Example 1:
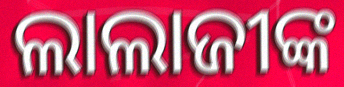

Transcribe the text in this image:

ଲାଲାଜୀଙ୍କ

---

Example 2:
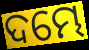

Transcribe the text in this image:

ଦମ୍ଭେ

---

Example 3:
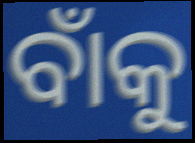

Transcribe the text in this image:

ବାଁକୁ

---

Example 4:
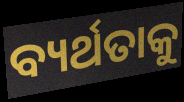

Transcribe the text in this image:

ବ୍ୟର୍ଥତାକୁ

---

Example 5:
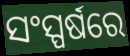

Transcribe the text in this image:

ସଂସ୍ପର୍ଷରେ